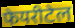
फेयरीटेल